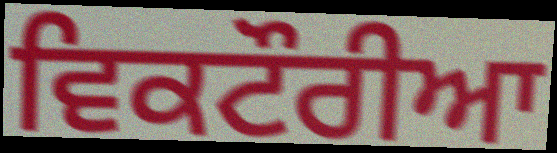
ਵਿਕਟੌਰੀਆ